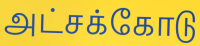
அட்சக்கோடு